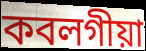
কবলগীয়া